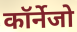
कॉर्नेजो